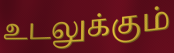
உடலுக்கும்